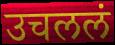
उचललं